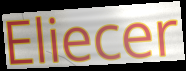
Eliecer